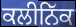
ਕਲੀਨਿੱਕ